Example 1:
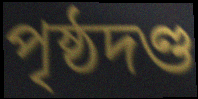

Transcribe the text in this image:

পৃষ্ঠদণ্ড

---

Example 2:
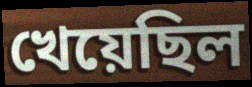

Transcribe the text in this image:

খেয়েছিল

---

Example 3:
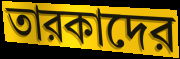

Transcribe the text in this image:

তারকাদের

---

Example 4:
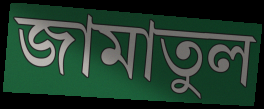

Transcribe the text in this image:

জামাতুল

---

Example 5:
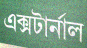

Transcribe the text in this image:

এক্সটার্নাল